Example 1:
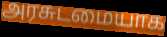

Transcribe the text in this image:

அரசுடமையாக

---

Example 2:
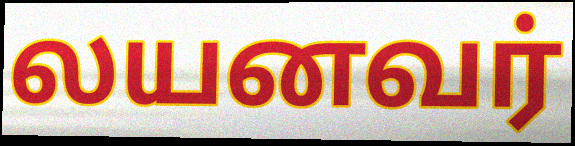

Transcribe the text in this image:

லயனவர்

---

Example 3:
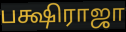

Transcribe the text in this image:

பக்ஷிராஜா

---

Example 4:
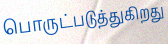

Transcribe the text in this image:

பொருட்படுத்துகிறது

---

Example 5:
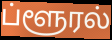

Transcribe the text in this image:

ப்ளூரல்